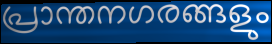
പ്രാന്തനഗരങ്ങളും